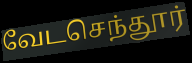
வேடசெந்தூர்